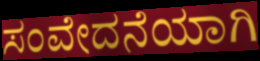
ಸಂವೇದನೆಯಾಗಿ